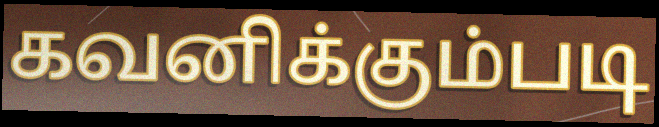
கவனிக்கும்படி